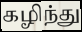
கழிந்து